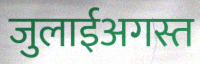
जुलाईअगस्त